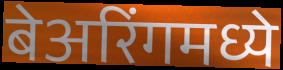
बेअरिंगमध्ये